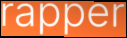
rapper